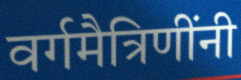
वर्गमैत्रिणींनी